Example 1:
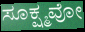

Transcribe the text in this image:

ಸೂಕ್ಷ್ಮವೋ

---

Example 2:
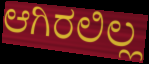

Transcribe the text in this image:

ಆಗಿರಲಿಲ್ಲ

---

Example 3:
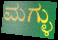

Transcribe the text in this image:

ಮಗ್ಳು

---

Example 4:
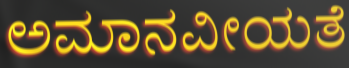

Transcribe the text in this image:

ಅಮಾನವೀಯತೆ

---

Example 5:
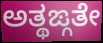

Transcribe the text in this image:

ಅತ್ಥಙ್ಗತೇ